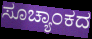
ಸೂಚ್ಯಾಂಕದ